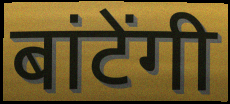
बांटेंगी